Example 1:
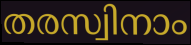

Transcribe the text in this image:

തരസ്വിനാം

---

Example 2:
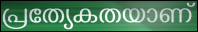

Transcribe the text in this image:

പ്രത്യേകതയാണ്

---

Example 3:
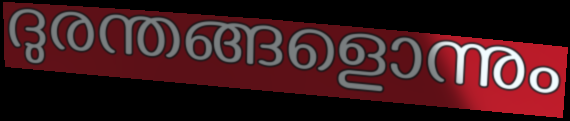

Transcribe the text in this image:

ദുരന്തങ്ങളൊന്നും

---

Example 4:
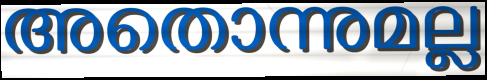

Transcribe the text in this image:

അതൊന്നുമല്ല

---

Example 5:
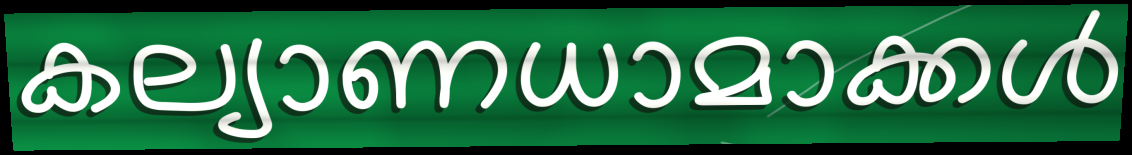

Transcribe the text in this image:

കല്യാണധാമാക്കൾ